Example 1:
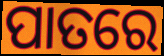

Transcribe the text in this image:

ପାତରେ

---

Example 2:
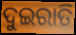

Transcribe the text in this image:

ଦୁଇରାତି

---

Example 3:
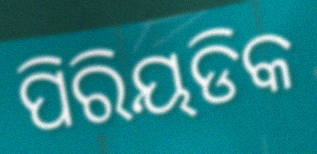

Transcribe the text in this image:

ପିରିୟଡିକ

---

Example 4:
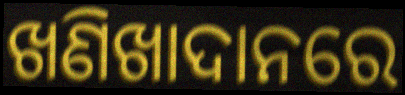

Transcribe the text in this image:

ଖଣିଖାଦାନରେ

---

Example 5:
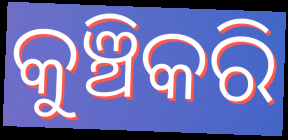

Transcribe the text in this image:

କୁଞ୍ଚିକରି